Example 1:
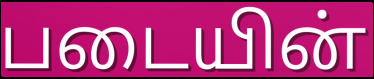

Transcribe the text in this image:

படையின்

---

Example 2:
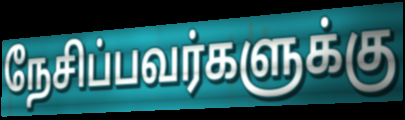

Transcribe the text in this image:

நேசிப்பவர்களுக்கு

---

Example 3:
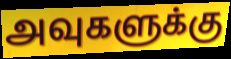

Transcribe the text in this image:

அவுகளுக்கு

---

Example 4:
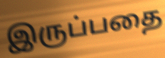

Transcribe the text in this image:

இருப்பதை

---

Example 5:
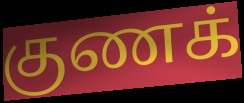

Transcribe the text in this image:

குணக்